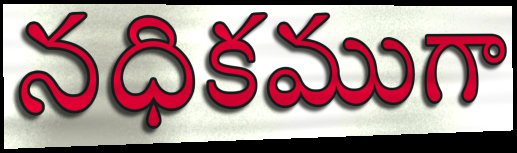
నధికముగా